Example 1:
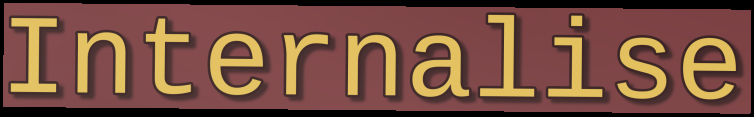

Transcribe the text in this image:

Internalise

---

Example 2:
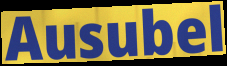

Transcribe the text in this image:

Ausubel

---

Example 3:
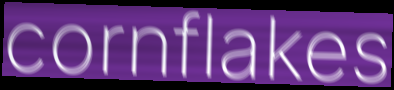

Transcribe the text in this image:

cornflakes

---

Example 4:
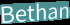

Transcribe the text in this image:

Bethan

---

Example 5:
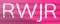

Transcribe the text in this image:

RWJR